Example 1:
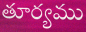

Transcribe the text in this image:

తూర్యము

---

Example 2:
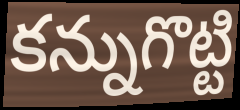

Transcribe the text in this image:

కన్నుగొట్టి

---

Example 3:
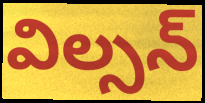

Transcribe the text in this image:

విల్సన్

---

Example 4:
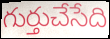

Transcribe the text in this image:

గుర్తుచేసేది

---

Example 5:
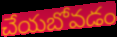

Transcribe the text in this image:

చేయబోవడం